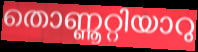
തൊണ്ണൂറ്റിയാറു